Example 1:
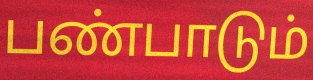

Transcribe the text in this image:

பண்பாடும்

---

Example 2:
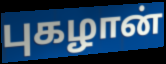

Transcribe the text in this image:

புகழான்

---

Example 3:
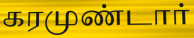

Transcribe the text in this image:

கரமுண்டார்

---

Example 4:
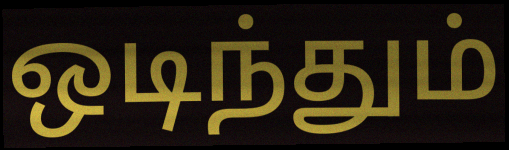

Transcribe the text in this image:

ஒடிந்தும்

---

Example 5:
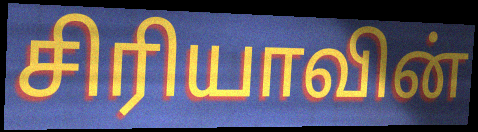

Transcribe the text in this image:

சிரியாவின்